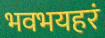
भवभयहरं